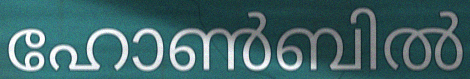
ഹോൺബിൽ